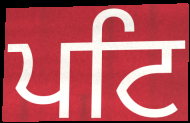
ਪਟਿ